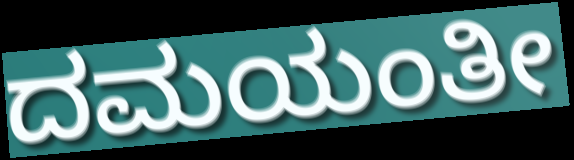
ದಮಯಂತೀ